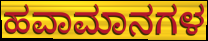
ಹವಾಮಾನಗಳ